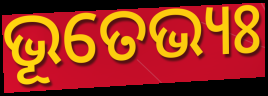
ଭୂତେଭ୍ୟଃ